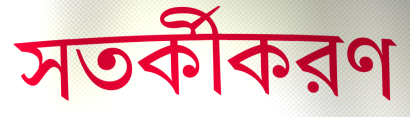
সতর্কীকরণ